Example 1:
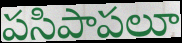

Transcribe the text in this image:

పసిపాపలూ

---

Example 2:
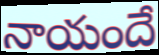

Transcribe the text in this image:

నాయందే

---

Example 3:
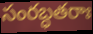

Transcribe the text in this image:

సంరబ్ధతరాః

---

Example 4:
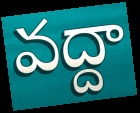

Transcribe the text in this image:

వద్దా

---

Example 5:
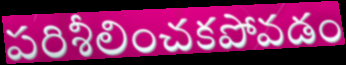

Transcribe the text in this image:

పరిశీలించకపోవడం